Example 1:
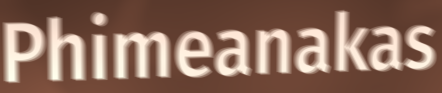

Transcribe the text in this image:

Phimeanakas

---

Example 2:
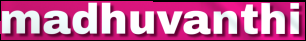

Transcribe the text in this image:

madhuvanthi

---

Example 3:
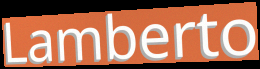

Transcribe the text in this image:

Lamberto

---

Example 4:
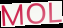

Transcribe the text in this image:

MOL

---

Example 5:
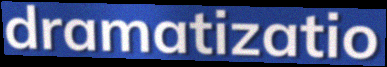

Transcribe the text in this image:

dramatizatio